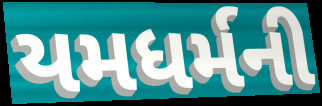
યમધર્મની